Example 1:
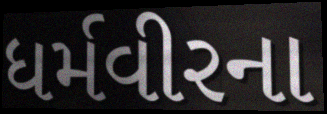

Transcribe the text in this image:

ધર્મવીરના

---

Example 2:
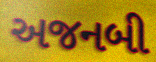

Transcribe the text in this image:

અજનબી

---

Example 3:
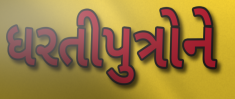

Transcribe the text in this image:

ધરતીપુત્રોને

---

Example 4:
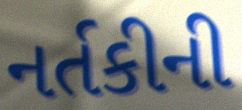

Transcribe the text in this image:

નર્તકીની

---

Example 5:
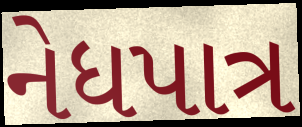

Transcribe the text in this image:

નેધપાત્ર